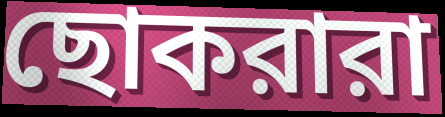
ছোকরারা